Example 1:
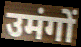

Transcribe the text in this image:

उमंगों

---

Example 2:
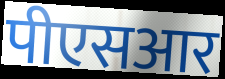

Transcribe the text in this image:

पीएसआर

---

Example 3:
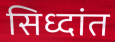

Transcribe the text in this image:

सिध्दांत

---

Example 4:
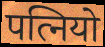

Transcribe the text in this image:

पत्नियो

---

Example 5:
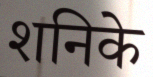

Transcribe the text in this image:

शनिके